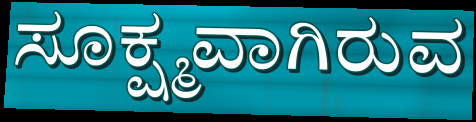
ಸೂಕ್ಷ್ಮವಾಗಿರುವ